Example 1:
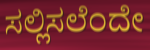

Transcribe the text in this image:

ಸಲ್ಲಿಸಲೆಂದೇ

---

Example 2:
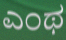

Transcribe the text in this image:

ಎಂಥ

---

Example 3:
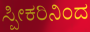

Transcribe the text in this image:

ಸ್ಪೀಕರಿನಿಂದ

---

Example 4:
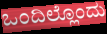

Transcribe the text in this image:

ಒಂದಿಲ್ಲೊಂದು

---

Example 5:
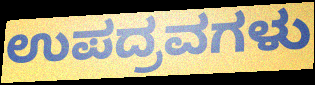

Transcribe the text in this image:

ಉಪದ್ರವಗಳು